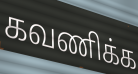
கவணிக்க